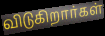
விடுகிறார்கள்